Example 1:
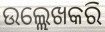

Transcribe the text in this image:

ଉଲ୍ଲେଖକରି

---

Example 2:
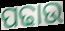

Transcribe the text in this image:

ପଢାଉ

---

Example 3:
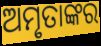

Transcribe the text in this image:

ଅମୃତାଙ୍କର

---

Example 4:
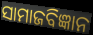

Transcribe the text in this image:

ସାମାଜବିଜ୍ଞାନ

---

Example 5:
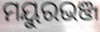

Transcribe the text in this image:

ମୟୁରଭଞ୍ଜ